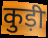
कुड़ी